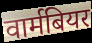
वार्मबियर